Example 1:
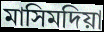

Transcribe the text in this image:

মাসিমদিয়া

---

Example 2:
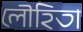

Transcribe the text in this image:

লৌহিতা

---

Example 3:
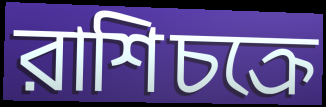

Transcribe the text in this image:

রাশিচক্রে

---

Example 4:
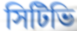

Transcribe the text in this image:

সিটিভি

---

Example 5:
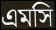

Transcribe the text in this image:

এমসি